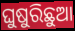
ଘୁଷୁରିଛୁଆ